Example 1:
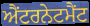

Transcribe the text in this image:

ਐਂਟਰਨੇਟਮੈਂਟ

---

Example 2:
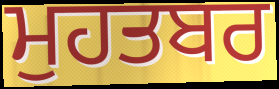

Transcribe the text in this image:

ਮੁਹਤਬਰ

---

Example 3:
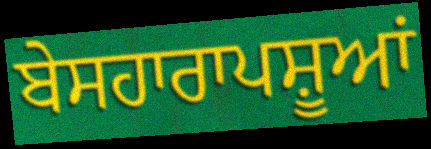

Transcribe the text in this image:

ਬੇਸਹਾਰਾਪਸ਼ੂਆਂ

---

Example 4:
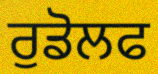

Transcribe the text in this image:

ਰੁਡੋਲਫ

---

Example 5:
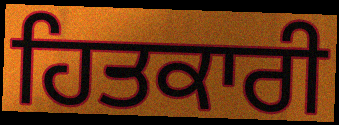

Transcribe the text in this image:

ਹਿਤਕਾਰੀ